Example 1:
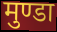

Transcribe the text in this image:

मुण्डा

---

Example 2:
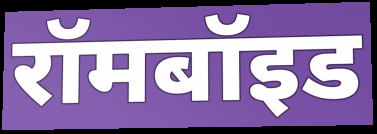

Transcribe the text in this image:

रॉमबॉइड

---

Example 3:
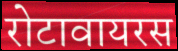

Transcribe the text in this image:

रोटावायरस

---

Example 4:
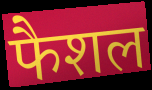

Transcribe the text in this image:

फैशल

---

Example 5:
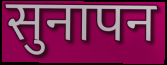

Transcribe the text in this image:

सुनापन